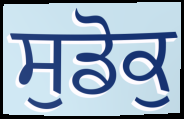
ਸੁਡੋਕੁ